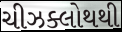
ચીઝક્લોથથી